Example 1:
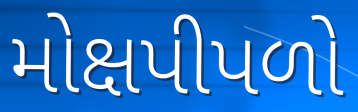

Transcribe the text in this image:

મોક્ષપીપળો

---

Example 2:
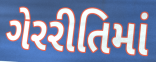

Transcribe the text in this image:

ગેરરીતિમાં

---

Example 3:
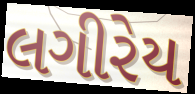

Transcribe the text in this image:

લગીરેય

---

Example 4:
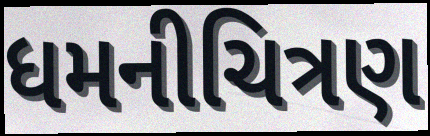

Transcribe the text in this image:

ધમનીચિત્રણ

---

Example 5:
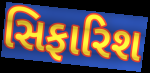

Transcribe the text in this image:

સિફારિશ